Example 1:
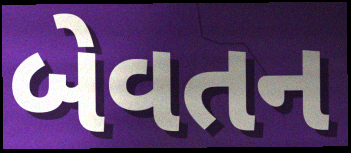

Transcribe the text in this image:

બેવતન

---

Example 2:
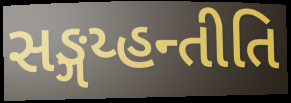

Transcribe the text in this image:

સઙ્ગય્હન્તીતિ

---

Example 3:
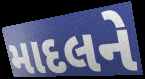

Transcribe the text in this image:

માદલને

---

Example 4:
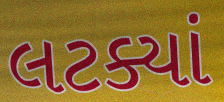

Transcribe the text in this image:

લટક્યાં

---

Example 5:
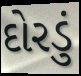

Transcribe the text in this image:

દોરડું